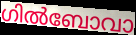
ഗിൽബോവാ